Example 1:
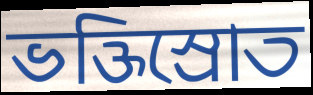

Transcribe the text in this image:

ভক্তিস্রোত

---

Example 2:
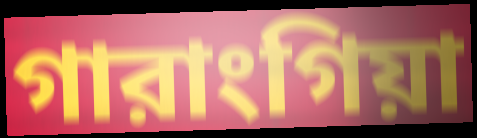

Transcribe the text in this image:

গারাংগিয়া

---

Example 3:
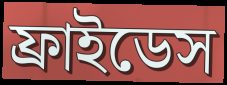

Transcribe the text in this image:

ফ্রাইডেস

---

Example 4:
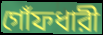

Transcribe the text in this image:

গোঁফধারী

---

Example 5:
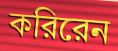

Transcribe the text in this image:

করিরেন